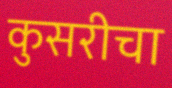
कुसरीचा